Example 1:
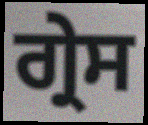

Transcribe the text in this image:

ਗ੍ਰੇਸ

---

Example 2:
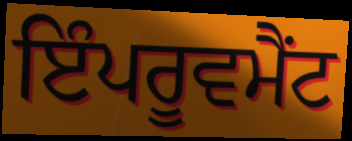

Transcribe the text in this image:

ਇੰਪਰੂਵਮੈਂਟ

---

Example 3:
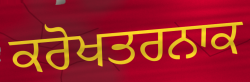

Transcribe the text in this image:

ਕਰੋਖਤਰਨਾਕ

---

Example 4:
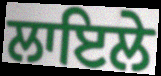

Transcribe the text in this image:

ਲਾਇਲੇ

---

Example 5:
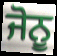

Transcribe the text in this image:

ਜੋਨੂ